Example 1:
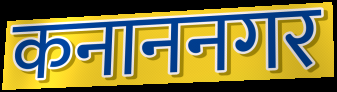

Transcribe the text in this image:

कनाननगर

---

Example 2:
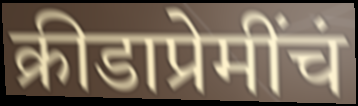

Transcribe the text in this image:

क्रीडाप्रेमींचं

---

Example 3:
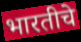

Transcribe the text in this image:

भारतीचे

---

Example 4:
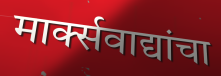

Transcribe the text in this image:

मार्क्‍सवाद्यांचा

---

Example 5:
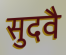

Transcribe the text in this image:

सुदवै